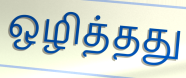
ஒழித்தது